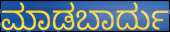
ಮಾಡಬಾರ್ದು